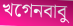
খগেনবাবু